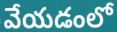
వేయడంలో